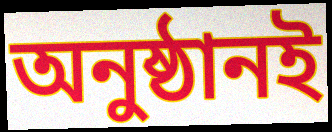
অনুষ্ঠানই